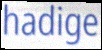
hadige